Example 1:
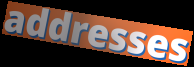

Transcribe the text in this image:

addresses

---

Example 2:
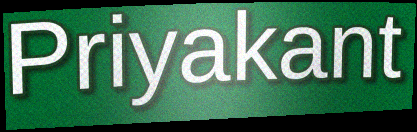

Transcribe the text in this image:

Priyakant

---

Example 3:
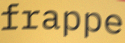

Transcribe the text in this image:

frappe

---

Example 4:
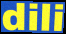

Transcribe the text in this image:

dili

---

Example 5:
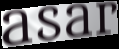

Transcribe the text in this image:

asar